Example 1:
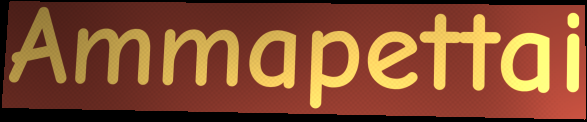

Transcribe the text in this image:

Ammapettai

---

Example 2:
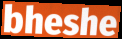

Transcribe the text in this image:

bheshe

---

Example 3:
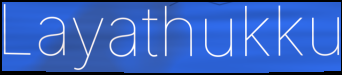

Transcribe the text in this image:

Layathukku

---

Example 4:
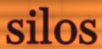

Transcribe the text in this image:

silos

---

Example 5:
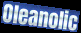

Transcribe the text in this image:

Oleanolic